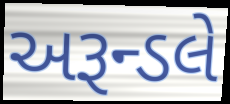
અરૂન્ડલે